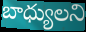
బాధ్యులని